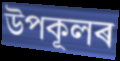
উপকূলৰ